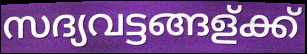
സദ്യവട്ടങ്ങള്ക്ക്